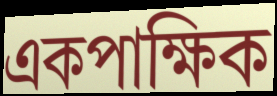
একপাক্ষিক